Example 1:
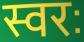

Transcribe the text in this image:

स्वरः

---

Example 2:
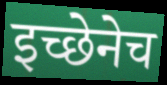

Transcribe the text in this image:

इच्छेनेच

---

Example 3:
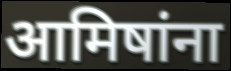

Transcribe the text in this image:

आमिषांना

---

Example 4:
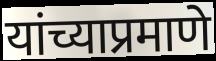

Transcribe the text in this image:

यांच्याप्रमाणे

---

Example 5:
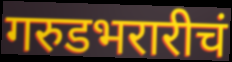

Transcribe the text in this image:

गरुडभरारीचं